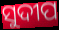
ସୁଦୀପ